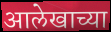
आलेखाच्या